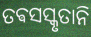
ତଵସସ୍କୃତାନି